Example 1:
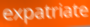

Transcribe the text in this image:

expatriate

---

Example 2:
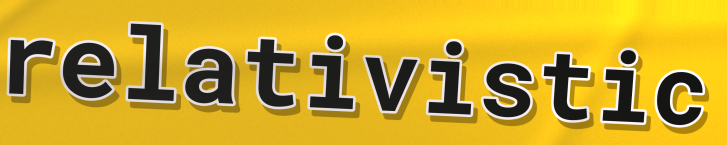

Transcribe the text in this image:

relativistic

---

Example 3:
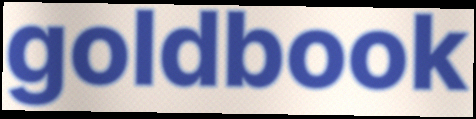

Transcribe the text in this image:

goldbook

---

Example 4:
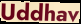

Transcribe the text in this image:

Uddhav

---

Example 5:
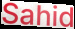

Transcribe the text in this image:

Sahid